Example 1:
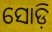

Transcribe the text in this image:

ସୋଡ଼ି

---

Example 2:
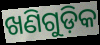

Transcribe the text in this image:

ଖଣିଗୁଡ଼ିକ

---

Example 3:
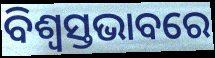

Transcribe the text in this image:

ବିଶ୍ୱସ୍ତଭାବରେ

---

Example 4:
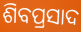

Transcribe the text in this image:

ଶିବପ୍ରସାଦ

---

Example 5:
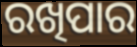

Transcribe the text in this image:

ରଖିପାର